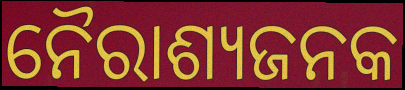
ନୈରାଶ୍ୟଜନକ